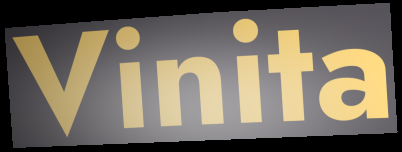
Vinita